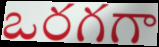
ఒరగగా